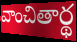
వాంచితార్థ